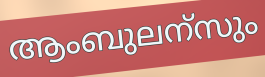
ആംബുലന്സും